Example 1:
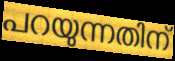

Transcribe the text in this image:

പറയുന്നതിന്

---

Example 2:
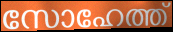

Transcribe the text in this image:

സോഹേത്ത്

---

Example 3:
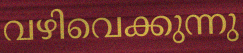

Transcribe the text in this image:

വഴിവെക്കുന്നു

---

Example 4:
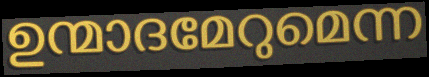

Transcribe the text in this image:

ഉന്മാദമേറുമെന്ന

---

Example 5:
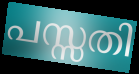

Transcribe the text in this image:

പസ്സതി